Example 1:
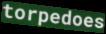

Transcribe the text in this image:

torpedoes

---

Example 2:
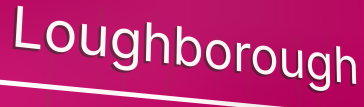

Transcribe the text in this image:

Loughborough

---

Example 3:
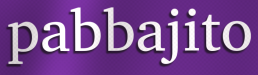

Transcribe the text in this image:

pabbajito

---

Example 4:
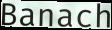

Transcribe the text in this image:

Banach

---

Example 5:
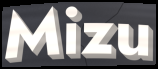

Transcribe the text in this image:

Mizu